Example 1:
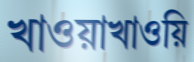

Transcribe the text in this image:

খাওয়াখাওয়ি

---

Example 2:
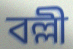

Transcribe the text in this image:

বল্লী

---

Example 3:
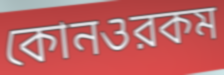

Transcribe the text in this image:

কোনওরকম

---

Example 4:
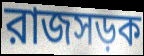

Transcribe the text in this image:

রাজসড়ক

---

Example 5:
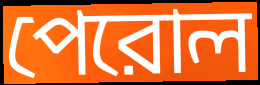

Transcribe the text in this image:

পেরোল